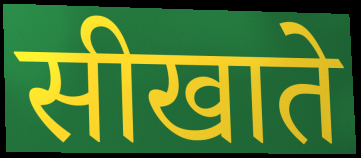
सीखाते